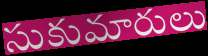
సుకుమారులు